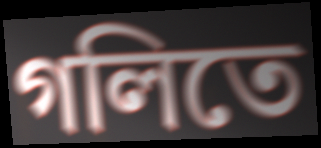
গলিতে